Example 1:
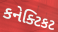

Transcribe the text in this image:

કનેક્ટિકટ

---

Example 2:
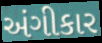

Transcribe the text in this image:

અંગીકાર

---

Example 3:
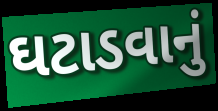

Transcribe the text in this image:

ઘટાડવાનું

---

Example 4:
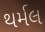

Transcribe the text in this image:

થર્મલ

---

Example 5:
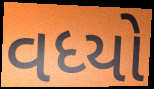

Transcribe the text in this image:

વધ્યો